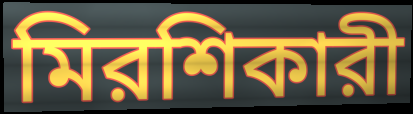
মিরশিকারী